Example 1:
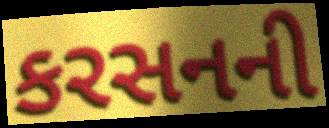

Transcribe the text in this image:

કરસનની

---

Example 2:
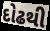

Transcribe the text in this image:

દોઢથી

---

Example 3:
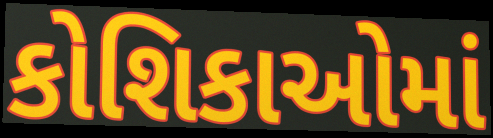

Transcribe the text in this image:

કોશિકાઓમાં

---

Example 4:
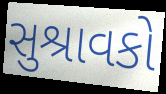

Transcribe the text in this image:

સુશ્રાવકો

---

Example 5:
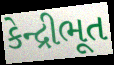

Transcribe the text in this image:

કેન્દ્રીભૂત